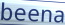
beena